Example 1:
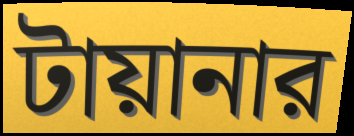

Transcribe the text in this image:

টায়ানার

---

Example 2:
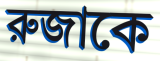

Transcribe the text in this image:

রুজাকে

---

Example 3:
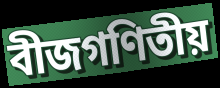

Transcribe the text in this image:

বীজগণিতীয়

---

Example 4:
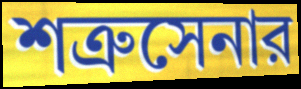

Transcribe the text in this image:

শত্রুসেনার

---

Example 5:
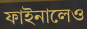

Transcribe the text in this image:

ফাইনালেও